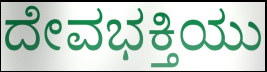
ದೇವಭಕ್ತಿಯು